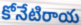
కోనేటిరాయ